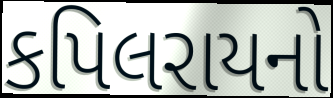
કપિલરાયનો